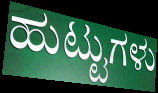
ಹುಟ್ಟುಗಳು